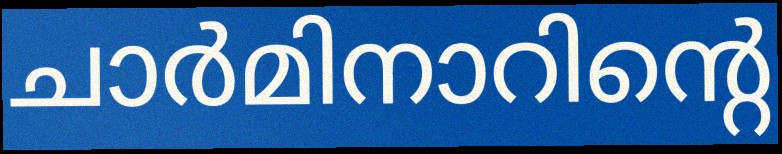
ചാർമിനാറിന്റെ